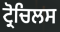
ਟ੍ਰੋਚਿਲਸ